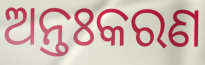
ଅନ୍ତଃକରଣ